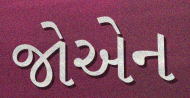
જોએન